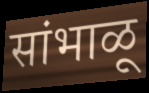
सांभाळू